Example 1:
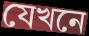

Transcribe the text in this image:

যেখনে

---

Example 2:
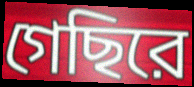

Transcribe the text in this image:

গেছিরে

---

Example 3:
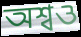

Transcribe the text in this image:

অশ্বও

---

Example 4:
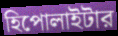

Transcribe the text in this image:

হিপোলাইটার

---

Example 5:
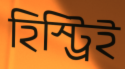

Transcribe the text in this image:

হিস্ট্রিই